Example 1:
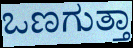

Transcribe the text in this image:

ಒಣಗುತ್ತಾ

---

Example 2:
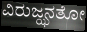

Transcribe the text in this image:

ವಿರುಜ್ಝನತೋ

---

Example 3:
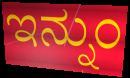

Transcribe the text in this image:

ಇನ್ನುಂ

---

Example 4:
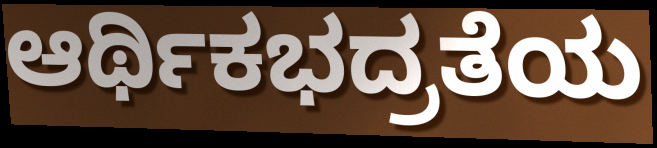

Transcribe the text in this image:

ಆರ್ಥಿಕಭದ್ರತೆಯ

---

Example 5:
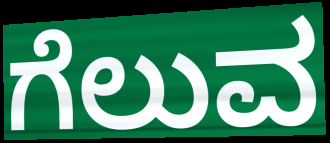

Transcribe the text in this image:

ಗೆಲುವ